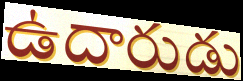
ఉదారుడు